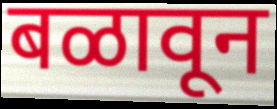
बळावून